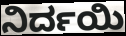
ನಿರ್ದಯಿ